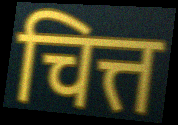
चित्त